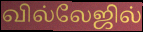
வில்லேஜில்